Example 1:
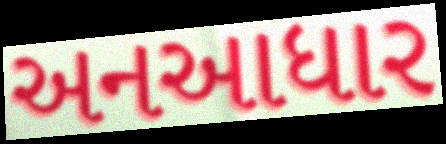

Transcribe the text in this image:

અનઆધાર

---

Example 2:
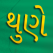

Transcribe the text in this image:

થુણે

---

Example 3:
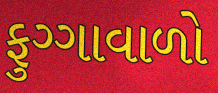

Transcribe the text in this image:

ફુગ્ગાવાળો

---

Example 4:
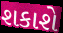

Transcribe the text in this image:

શકાશે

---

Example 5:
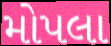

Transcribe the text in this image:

મોપલા